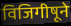
विजिगीषूने